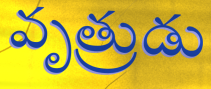
వృత్రుడు